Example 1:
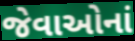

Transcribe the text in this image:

જેવાઓનાં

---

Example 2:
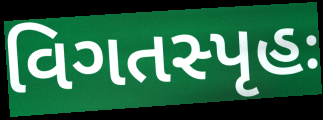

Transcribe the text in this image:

વિગતસ્પૃહઃ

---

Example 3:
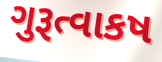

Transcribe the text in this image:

ગુરૂત્વાકષ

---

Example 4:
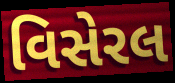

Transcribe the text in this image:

વિસેરલ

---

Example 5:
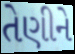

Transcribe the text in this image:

તેણીને